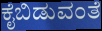
ಕೈಬಿಡುವಂತೆ